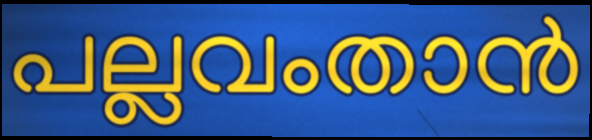
പല്ലവംതാൻ